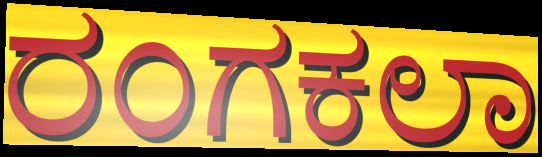
ರಂಗಕಲಾ